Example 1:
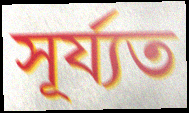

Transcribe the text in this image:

সূৰ্য্যত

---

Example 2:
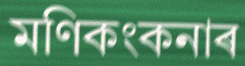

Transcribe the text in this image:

মণিকংকনাৰ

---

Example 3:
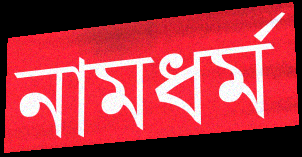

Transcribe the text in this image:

নামধৰ্ম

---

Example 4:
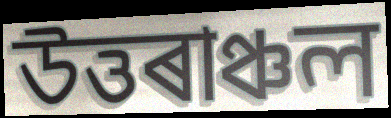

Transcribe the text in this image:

উত্তৰাঞ্চল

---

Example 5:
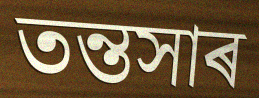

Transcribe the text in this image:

তন্তসাৰ